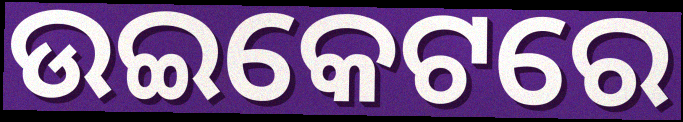
ଉଇକେଟରେ